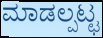
ಮಾಡಲ್ಪಟ್ಟ